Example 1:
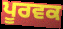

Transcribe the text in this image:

ਪੂਰਵਕ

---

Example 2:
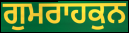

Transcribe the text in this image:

ਗੁਮਰਾਹਕੁਨ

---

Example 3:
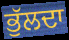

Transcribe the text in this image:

ਭੁੱਲਦਾ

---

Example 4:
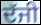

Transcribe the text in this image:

ਦੱਜੀ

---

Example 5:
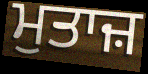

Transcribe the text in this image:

ਮੁਤਾਜ਼